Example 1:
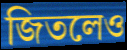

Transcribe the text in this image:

জিতলেও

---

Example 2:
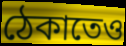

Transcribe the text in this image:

ঠেকাতেও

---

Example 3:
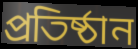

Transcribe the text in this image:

প্রতিষ্ঠান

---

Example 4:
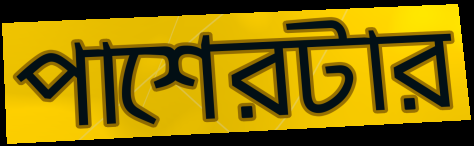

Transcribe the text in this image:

পাশেরটার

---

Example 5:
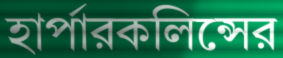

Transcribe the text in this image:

হার্পারকলিন্সের